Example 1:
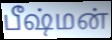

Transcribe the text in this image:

பீஷ்மன்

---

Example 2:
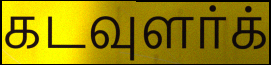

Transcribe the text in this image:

கடவுளர்க்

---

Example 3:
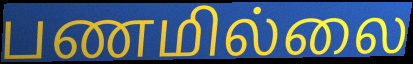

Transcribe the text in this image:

பணமில்லை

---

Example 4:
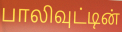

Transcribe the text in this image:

பாலிவுட்டின்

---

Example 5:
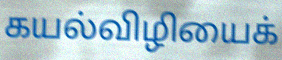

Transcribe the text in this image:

கயல்விழியைக்